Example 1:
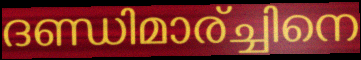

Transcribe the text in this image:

ദണ്ഡിമാര്ച്ചിനെ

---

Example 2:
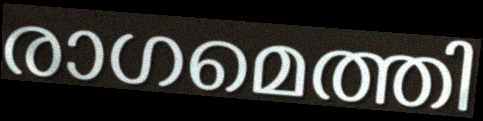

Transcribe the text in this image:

രാഗമെത്തി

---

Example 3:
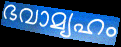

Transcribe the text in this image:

ഭവാമ്യഹം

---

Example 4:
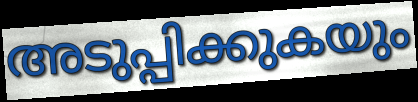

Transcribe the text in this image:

അടുപ്പിക്കുകയും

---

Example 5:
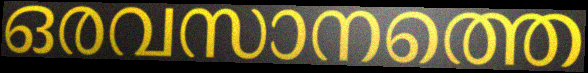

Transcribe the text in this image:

ഒരവസാനത്തെ